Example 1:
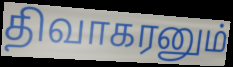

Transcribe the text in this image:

திவாகரனும்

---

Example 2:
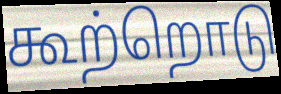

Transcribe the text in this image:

கூற்றொடு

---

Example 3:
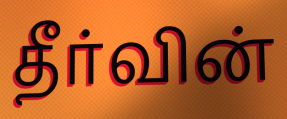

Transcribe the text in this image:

தீர்வின்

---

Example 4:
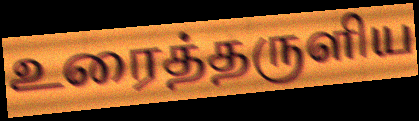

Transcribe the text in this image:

உரைத்தருளிய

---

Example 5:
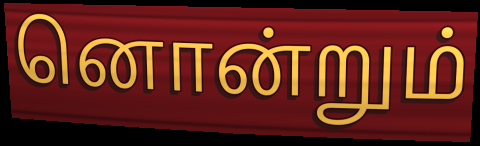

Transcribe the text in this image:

னொன்றும்